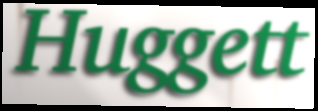
Huggett